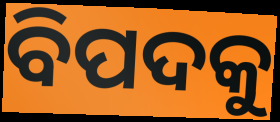
ବିପଦକୁ